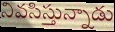
నివసిస్తున్నాడు